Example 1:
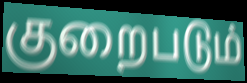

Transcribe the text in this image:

குறைபடும்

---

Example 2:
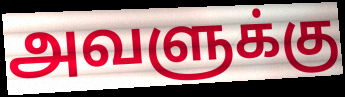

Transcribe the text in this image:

அவளுக்கு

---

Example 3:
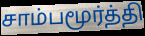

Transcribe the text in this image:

சாம்பமூர்த்தி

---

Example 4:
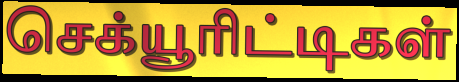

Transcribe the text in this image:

செக்யூரிட்டிகள்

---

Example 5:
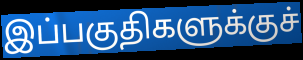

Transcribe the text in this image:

இப்பகுதிகளுக்குச்